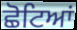
ਛੋਟਿਆਂ